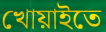
খোয়াইতে